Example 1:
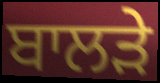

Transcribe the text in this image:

ਬਾਲੜੇ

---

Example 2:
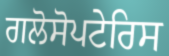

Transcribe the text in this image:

ਗਲੋਸੋਪਟੇਰਿਸ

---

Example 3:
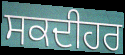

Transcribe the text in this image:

ਸਕਦੀਹਰ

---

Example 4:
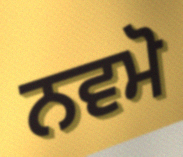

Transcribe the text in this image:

ਨਵਮੋ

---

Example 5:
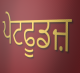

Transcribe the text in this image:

ਪੇਟਫੂਡਜ਼